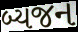
બ્યજન